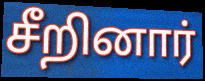
சீறினார்